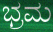
ಭ್ರಮ